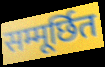
सम्मूर्छित